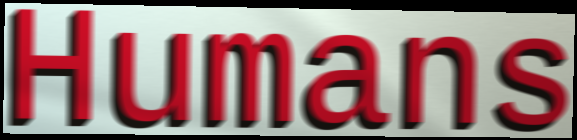
Humans